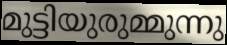
മുട്ടിയുരുമ്മുന്നു